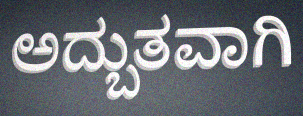
ಅದ್ಬುತವಾಗಿ